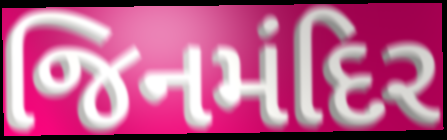
જિનમંદિર